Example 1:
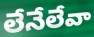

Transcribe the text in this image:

లేనేలేవా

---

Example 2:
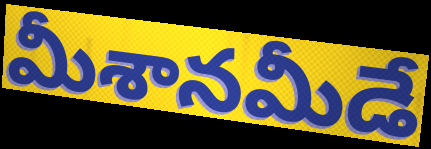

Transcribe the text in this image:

మీశానమీడే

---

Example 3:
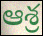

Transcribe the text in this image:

ఆశ్ర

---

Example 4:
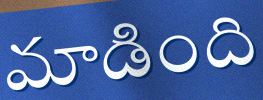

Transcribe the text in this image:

మాడింది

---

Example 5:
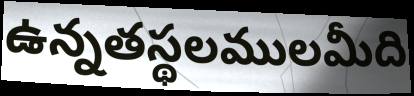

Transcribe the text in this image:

ఉన్నతస్థలములమీది